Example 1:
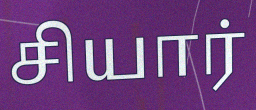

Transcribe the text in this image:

சியார்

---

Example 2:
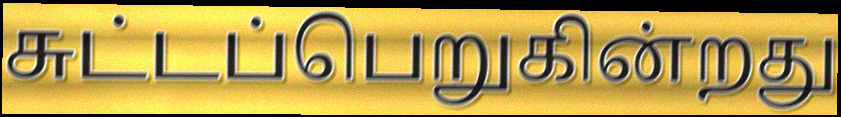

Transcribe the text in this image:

சுட்டப்பெறுகின்றது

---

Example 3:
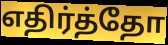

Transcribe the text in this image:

எதிர்த்தோ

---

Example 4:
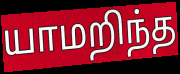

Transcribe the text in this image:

யாமறிந்த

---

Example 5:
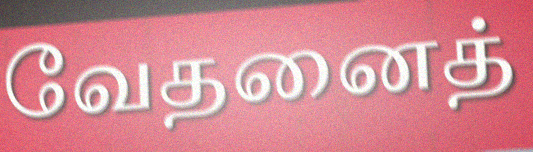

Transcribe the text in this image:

வேதனைத்